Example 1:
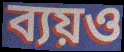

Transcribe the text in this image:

ব্যয়ও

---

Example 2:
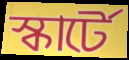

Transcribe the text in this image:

স্কার্টে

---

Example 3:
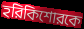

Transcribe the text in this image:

হরিকিশোরকে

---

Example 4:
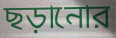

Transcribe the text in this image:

ছড়ানোর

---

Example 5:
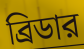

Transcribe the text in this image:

ব্রিডার